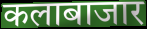
कलाबाजार